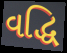
વદ્ધિ